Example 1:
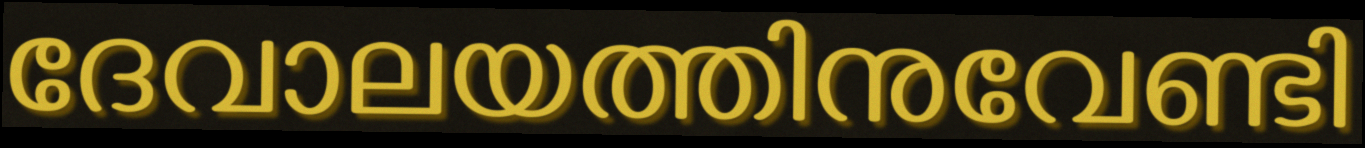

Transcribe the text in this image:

ദേവാലയത്തിനുവേണ്ടി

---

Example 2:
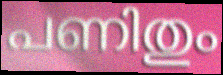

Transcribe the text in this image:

പണിതും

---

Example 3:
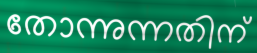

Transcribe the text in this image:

തോന്നുന്നതിന്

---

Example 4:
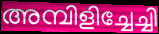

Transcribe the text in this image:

അമ്പിളിച്ചേച്ചി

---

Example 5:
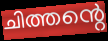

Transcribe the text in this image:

ചിത്തന്റെ